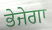
ਭੇਜੇਗਾ